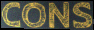
CONS